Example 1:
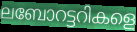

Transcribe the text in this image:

ലബോറട്ടറികളെ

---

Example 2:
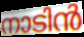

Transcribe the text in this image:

നാടിൻ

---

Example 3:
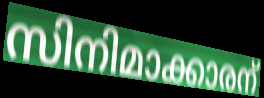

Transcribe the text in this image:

സിനിമാക്കാരന്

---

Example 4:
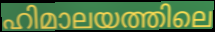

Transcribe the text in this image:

ഹിമാലയത്തിലെ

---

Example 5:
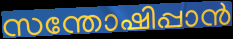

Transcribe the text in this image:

സന്തോഷിപ്പാൻ